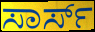
ಸಾರ್ಸ್